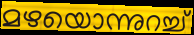
മഴയൊന്നുറച്ച്